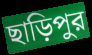
ছাড়িপুর